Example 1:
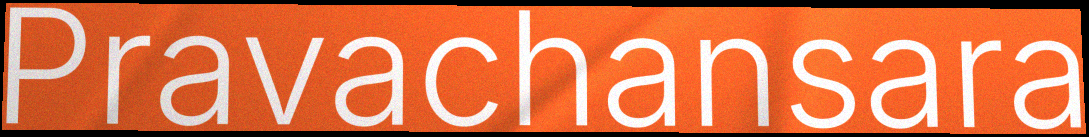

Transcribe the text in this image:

Pravachansara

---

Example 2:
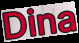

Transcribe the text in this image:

Dina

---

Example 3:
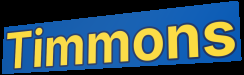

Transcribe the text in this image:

Timmons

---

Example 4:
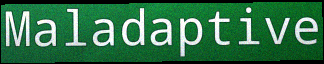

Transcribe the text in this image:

Maladaptive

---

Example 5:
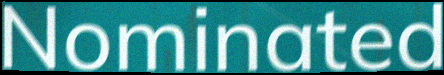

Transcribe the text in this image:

Nominated